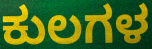
ಕುಲಗಳ